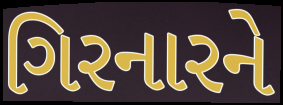
ગિરનારને